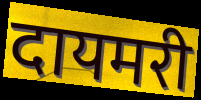
दायमरी